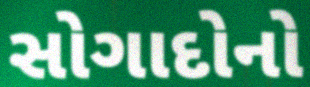
સોગાદોનો